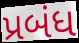
પ્રબંધ